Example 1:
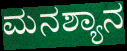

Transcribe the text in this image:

ಮನಶ್ಯಾನ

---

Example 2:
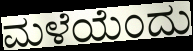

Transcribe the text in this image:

ಮಳೆಯೆಂದು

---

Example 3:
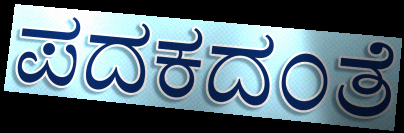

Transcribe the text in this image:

ಪದಕದಂತೆ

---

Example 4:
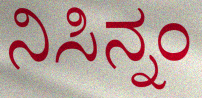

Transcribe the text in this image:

ನಿಸಿನ್ನಂ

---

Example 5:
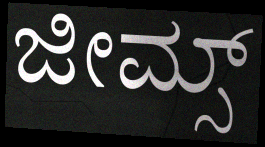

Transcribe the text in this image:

ಜೀಮ್ಸ್